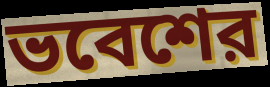
ভবেশের